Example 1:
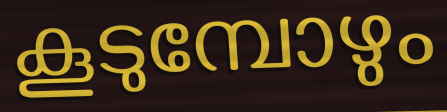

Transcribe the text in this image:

കൂടുമ്പോഴും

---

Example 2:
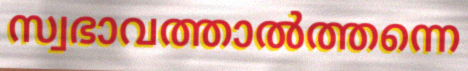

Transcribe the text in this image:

സ്വഭാവത്താൽത്തന്നെ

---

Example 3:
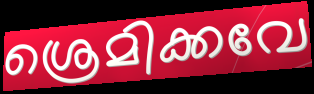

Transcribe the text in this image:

ശ്രെമിക്കവേ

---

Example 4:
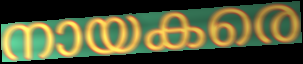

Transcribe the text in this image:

നായകരെ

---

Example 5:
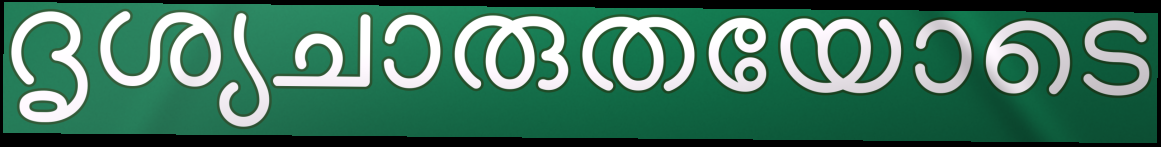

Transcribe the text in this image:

ദൃശ്യചാരുതയോടെ